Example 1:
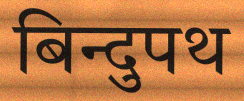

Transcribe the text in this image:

बिन्दुपथ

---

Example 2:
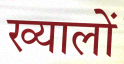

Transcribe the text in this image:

ख्यालों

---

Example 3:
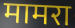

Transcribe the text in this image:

मामरा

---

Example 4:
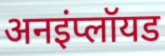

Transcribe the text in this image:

अनइंप्लॉयड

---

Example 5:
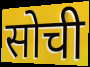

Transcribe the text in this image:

सोची